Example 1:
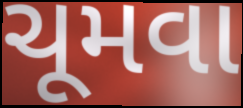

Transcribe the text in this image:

ચૂમવા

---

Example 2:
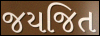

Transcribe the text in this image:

જયજિત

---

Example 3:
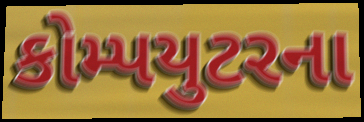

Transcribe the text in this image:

કોમ્પયુટરના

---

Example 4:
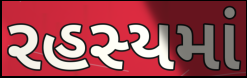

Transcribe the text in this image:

રહસ્યમાં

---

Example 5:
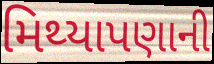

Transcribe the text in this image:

મિથ્યાપણાની